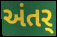
અંતર્